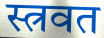
स्त्रवत